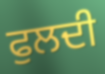
ਫੁਲਦੀ